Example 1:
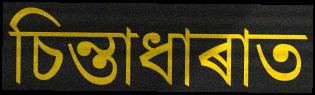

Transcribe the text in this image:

চিন্তাধাৰাত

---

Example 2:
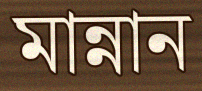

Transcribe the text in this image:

মান্নান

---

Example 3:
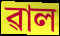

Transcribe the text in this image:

ৱাল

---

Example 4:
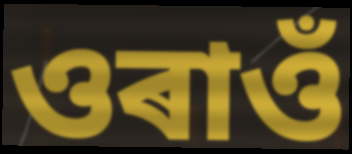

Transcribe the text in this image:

ওৰাওঁ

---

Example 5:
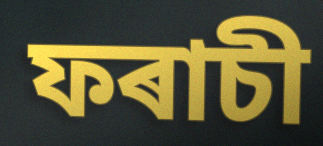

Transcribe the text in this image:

ফৰাচী